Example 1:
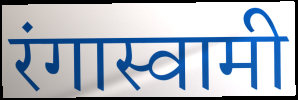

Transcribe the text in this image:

रंगास्वामी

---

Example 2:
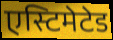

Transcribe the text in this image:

एस्टिमेटेड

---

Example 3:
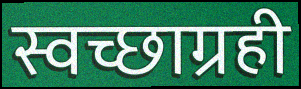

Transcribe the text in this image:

स्वच्छाग्रही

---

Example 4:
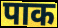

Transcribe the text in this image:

पाक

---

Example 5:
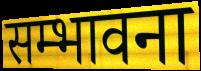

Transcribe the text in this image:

सम्भावना